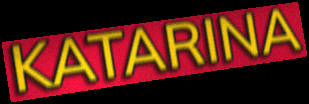
KATARINA